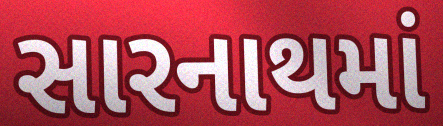
સારનાથમાં